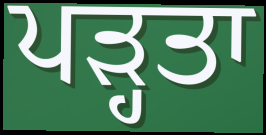
ਪੜ੍ਹਤਾ